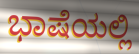
ಭಾಷೆಯಲ್ಲಿ